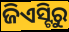
ଜିଏସ୍ଟିରୁ